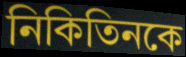
নিকিতিনকে